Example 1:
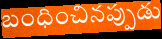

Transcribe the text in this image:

బంధించినప్పుడు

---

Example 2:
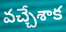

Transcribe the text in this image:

వచ్చేశాక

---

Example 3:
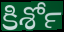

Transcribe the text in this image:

కిశోర్‍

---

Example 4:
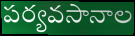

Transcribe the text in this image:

పర్యవసానాల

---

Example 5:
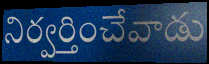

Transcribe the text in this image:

నిర్వర్తించేవాడు